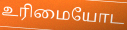
உரிமையோட